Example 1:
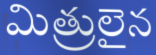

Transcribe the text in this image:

మిత్రులైన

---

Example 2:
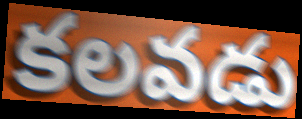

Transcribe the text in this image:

కలవడు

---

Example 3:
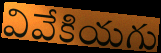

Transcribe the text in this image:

వివేకియగు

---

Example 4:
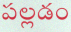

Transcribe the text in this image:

పల్లడం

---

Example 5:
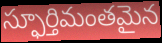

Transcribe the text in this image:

స్ఫూర్తిమంతమైన